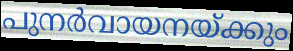
പുനർവായനയ്ക്കും